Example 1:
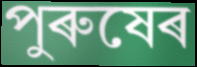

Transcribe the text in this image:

পুৰুষেৰ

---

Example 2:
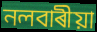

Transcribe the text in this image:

নলবাৰীয়া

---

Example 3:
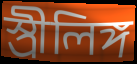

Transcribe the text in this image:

স্ত্ৰীলিঙ্গ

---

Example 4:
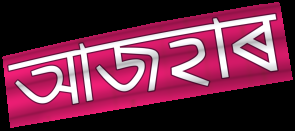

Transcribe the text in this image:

আজহাৰ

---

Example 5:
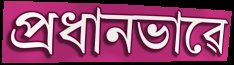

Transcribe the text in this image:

প্ৰধানভাৱে